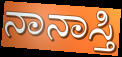
ನಾನಾಸ್ತಿ